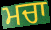
ਮਚਾ